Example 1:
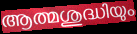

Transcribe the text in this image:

ആത്മശുദ്ധിയും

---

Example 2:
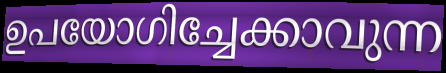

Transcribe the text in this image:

ഉപയോഗിച്ചേക്കാവുന്ന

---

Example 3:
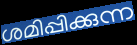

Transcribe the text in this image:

ശമിപ്പിക്കുന്ന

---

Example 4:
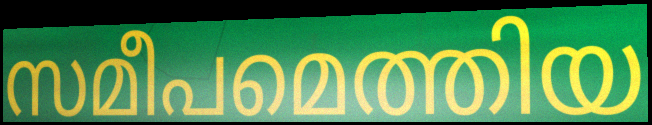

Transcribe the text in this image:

സമീപമെത്തിയ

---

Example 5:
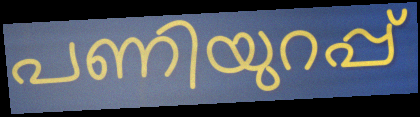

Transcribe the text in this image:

പണിയുറപ്പ്